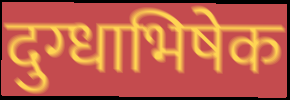
दुग्धाभिषेक